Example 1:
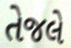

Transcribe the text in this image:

તેજલે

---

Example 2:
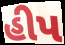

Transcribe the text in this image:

હીપ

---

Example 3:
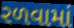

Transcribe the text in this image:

રળવામાં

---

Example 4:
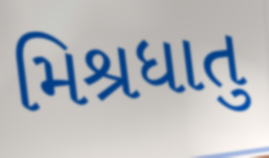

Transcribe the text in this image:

મિશ્રધાતુ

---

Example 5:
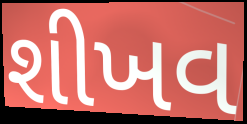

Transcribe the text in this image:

શીખવ